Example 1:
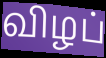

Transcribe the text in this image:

விழப்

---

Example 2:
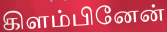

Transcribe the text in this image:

கிளம்பினேன்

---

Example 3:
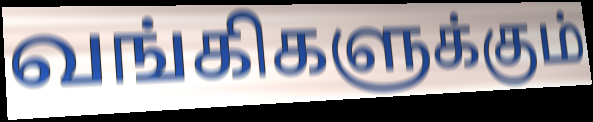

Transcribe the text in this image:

வங்கிகளுக்கும்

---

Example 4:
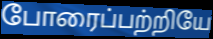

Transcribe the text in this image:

போரைப்பற்றியே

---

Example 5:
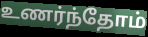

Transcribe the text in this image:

உணர்ந்தோம்